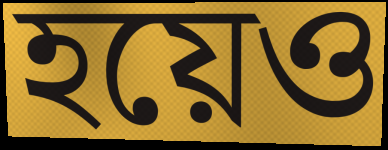
হয়েও